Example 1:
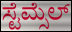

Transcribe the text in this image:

ಸ್ಟೆಮ್ಸೆಲ್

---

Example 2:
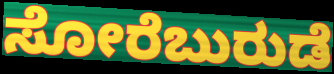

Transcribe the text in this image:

ಸೋರೆಬುರುಡೆ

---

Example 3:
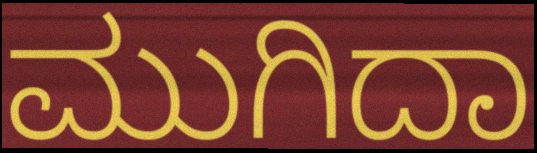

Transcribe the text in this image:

ಮುಗಿದಾ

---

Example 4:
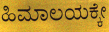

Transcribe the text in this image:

ಹಿಮಾಲಯಕ್ಕೇ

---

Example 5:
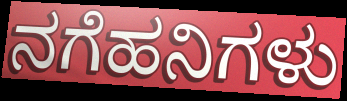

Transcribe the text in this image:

ನಗೆಹನಿಗಳು